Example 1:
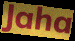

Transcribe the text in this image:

Jaha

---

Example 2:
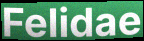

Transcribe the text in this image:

Felidae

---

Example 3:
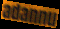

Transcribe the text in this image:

adannu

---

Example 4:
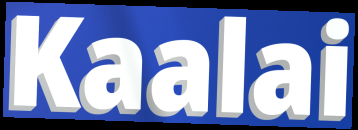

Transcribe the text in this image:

Kaalai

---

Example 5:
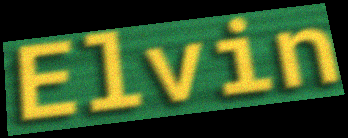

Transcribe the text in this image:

Elvin